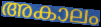
അകാലം